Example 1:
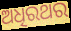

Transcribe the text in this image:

ଅଧିରଥର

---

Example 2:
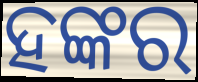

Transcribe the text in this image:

ହଙ୍କର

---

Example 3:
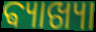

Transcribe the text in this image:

ଵ୍ୟାଖ୍ୟା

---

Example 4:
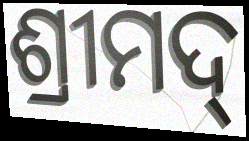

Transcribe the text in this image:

ଶ୍ରୀମଦ୍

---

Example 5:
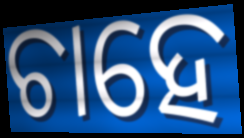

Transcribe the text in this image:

ଚାହେ